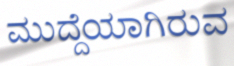
ಮುದ್ದೆಯಾಗಿರುವ